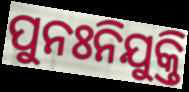
ପୁନଃନିଯୁକ୍ତି